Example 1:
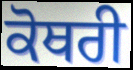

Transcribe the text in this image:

ਕੋਥਰੀ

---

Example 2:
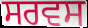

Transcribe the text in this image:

ਸਰਵਸ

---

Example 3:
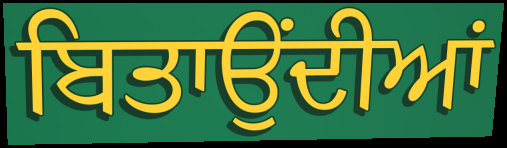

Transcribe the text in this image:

ਬਿਤਾਉਂਦੀਆਂ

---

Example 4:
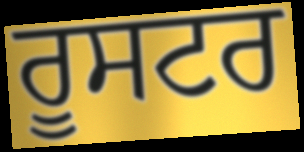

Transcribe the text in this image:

ਰੂਸਟਰ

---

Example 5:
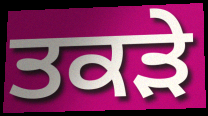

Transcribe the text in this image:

ਤਕੜੇ